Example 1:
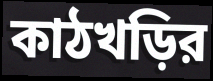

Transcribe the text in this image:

কাঠখড়ির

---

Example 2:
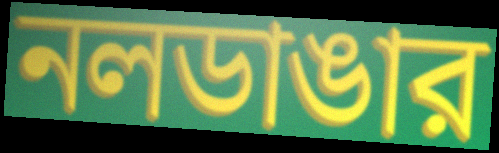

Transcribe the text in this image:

নলডাঙার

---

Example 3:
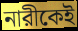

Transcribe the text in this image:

নারীকেই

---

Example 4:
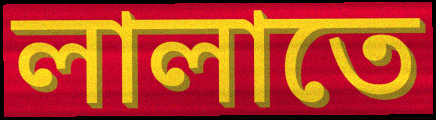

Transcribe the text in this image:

লালাতে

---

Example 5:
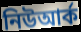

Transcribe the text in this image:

নিউআর্ক